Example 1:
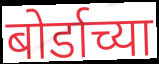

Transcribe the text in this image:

बोर्डाच्या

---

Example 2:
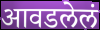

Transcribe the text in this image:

आवडलेलं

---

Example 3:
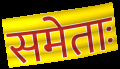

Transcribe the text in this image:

समेताः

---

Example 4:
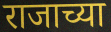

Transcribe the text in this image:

राजाच्या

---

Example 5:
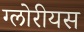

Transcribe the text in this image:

ग्लोरीयस